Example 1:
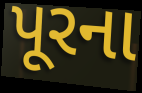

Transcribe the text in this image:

પૂરના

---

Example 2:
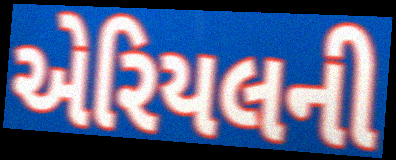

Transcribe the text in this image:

એરિયલની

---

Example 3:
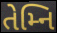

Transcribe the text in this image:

તેમ્નિ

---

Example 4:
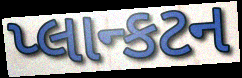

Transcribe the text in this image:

પ્લાન્કટન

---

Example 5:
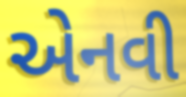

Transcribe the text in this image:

એનવી